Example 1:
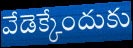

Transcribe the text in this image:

వేడెక్కేందుకు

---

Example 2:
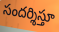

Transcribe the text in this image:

సందర్శిస్తూ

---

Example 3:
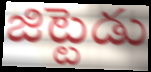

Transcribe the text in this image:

జిట్టెడు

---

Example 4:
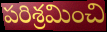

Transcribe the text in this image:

పరిశ్రమించి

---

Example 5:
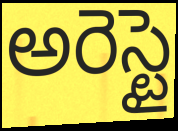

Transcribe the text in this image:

అరెస్టై